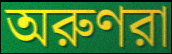
অরুণরা